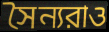
সৈন্যরাও